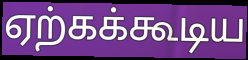
ஏற்கக்கூடிய